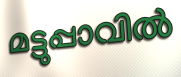
മട്ടുപ്പാവിൽ